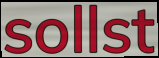
sollst